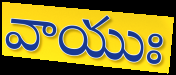
వాయుః